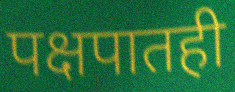
पक्षपातही